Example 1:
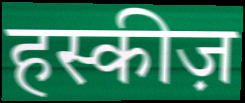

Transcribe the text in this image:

हस्कीज़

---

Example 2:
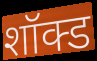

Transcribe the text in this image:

शॉक्ड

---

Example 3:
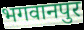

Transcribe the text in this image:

भगवानपुर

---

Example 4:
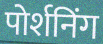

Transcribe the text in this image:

पोर्शनिंग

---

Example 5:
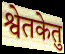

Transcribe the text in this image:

श्वेतकेतु